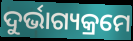
ଦୁର୍ଭାଗ୍ୟକ୍ରମେ